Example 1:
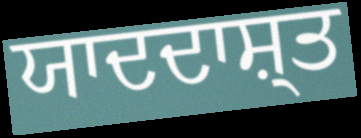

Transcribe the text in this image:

ਯਾਦਦਾਸ਼੍ਤ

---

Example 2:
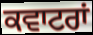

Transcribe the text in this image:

ਕਵਾਟਰਾਂ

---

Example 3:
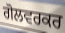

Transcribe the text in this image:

ਗੋਲਵਰਕਰ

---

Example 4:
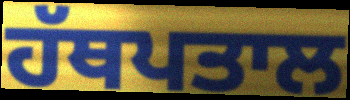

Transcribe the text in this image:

ਹੱਥਪਤਾਲ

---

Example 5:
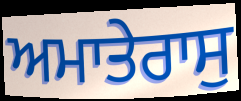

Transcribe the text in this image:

ਅਮਾਤੇਰਾਸੁ